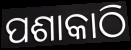
ପଶାକାଠି